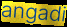
angadi